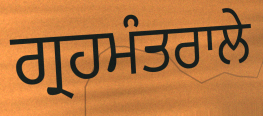
ਗ੍ਰਹਮੰਤਰਾਲੇ